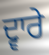
ਦ੍ਵਾਰੇ